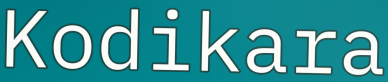
Kodikara